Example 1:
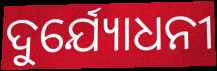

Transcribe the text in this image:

ଦୁର୍ଯ୍ୟୋଧନୀ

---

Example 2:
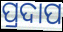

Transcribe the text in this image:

ପ୍ରଦାପ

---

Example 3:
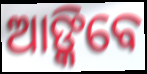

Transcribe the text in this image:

ଆଙ୍କିବେ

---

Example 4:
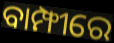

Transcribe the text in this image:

ବାମ୍ଫୀରେ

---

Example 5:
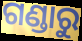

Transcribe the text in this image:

ଗଣ୍ଡାରୁ